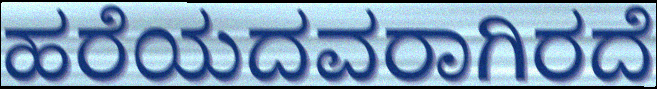
ಹರೆಯದವರಾಗಿರದೆ